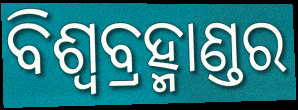
ବିଶ୍ୱବ୍ରହ୍ମାଣ୍ଡର